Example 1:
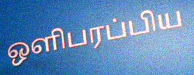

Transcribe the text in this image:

ஒளிபரப்பிய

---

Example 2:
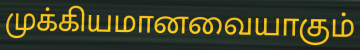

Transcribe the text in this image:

முக்கியமானவையாகும்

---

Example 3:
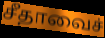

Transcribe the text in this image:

சீதாவைச்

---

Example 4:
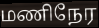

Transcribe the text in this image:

மணிநேர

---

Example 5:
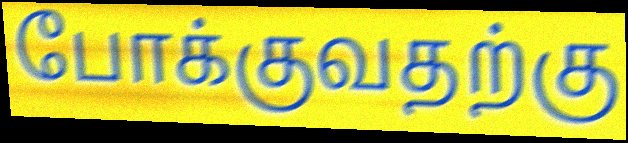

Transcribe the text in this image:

போக்குவதற்கு